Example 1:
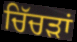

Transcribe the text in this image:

ਚਿੱਚੜਾਂ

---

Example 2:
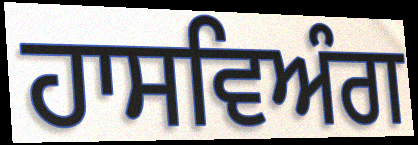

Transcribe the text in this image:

ਹਾਸਵਿਅੰਗ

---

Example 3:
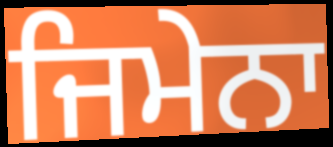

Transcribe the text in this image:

ਜਿਮੇਨਾ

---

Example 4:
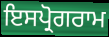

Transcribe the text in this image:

ਇਸਪ੍ਰੋਗਰਾਮ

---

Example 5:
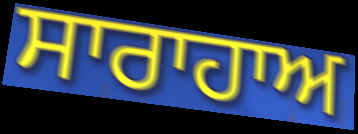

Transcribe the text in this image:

ਸਾਰਾਹਾਅ